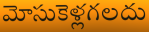
మోసుకెళ్లగలదు